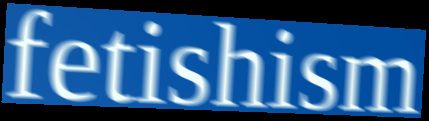
fetishism